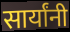
सार्यांनी